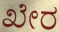
ಖೇರ